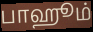
பாஹூம்